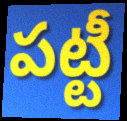
పట్టీ